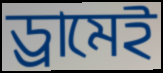
ড্রামেই